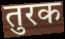
तुरक